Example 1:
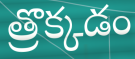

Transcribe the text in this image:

త్రొక్కడం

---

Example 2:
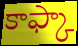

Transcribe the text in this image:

కాఫ్కా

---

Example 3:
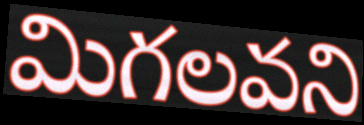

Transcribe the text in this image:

మిగలవని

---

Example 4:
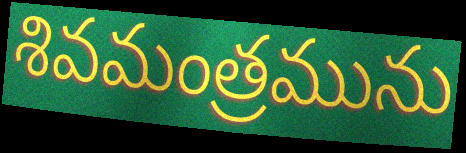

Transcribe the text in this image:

శివమంత్రమును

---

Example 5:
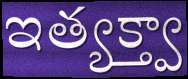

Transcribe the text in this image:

ఇత్యక్త్వా